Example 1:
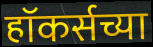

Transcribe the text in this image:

हॉकर्सच्या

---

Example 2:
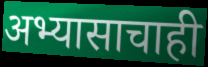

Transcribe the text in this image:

अभ्यासाचाही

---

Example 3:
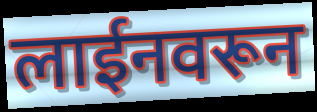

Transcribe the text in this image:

लाईनवरून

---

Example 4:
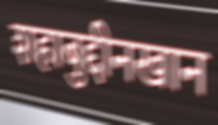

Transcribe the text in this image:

शहाबुद्दीनखान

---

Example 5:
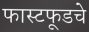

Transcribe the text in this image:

फास्टफूडचे